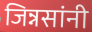
जिन्नसांनी